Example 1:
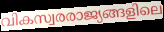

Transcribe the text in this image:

വികസ്വരരാജ്യങ്ങളിലെ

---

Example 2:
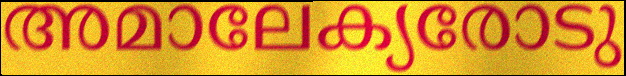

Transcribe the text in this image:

അമാലേക്യരോടു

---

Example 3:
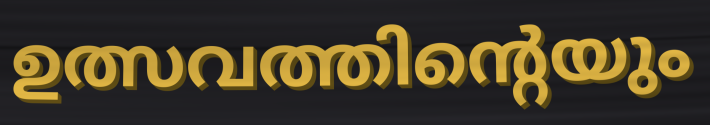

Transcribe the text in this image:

ഉത്സവത്തിന്റെയും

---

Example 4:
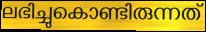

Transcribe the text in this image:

ലഭിച്ചുകൊണ്ടിരുന്നത്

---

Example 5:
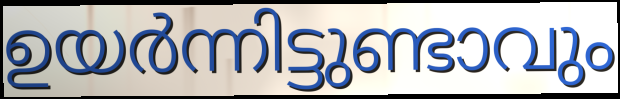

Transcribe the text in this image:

ഉയർന്നിട്ടുണ്ടാവും